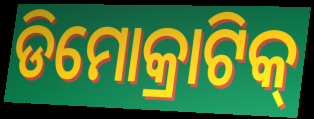
ଡିମୋକ୍ରାଟିକ୍